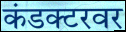
कंडक्टरवर